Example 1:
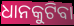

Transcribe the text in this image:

ଧାନକୁଟିବା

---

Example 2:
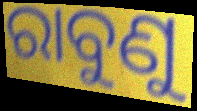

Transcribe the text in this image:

ରାବୁଣୁ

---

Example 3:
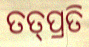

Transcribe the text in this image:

ତତ୍‌ପ୍ରତି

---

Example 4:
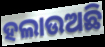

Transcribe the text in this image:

ହଲାଉଅଛି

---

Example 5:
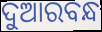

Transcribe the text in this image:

ଦୁଆରବନ୍ଧ